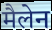
मैलेन